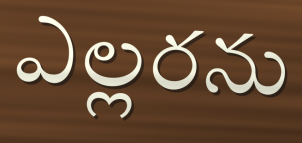
ఎల్లరను